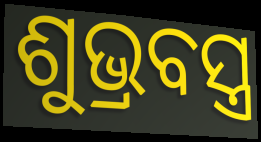
ଶୁଭ୍ରବସ୍ତ୍ର